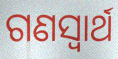
ଗଣସ୍ୱାର୍ଥ